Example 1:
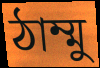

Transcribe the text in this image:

ঠাম্মু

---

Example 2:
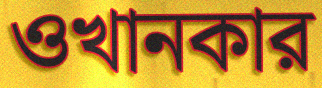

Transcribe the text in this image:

ওখানকার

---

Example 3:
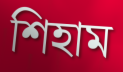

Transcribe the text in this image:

শিহাম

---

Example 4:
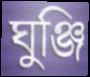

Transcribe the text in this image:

ঘুঞ্জি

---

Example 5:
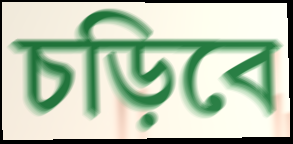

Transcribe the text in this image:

চড়িবে